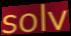
solv